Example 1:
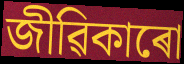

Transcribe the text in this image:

জীৱিকাৰো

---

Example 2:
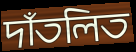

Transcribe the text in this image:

দাঁতলিত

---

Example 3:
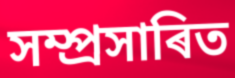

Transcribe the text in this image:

সম্প্ৰসাৰিত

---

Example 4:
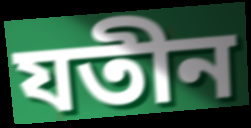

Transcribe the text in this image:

যতীন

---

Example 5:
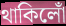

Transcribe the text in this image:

থাকিলোঁ